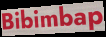
Bibimbap